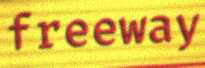
freeway